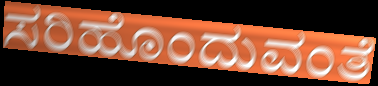
ಸರಿಹೊಂದುವಂತೆ